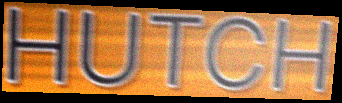
HUTCH